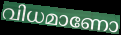
വിധമാണോ